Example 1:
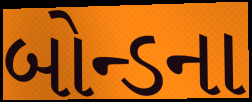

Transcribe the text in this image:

બોન્ડના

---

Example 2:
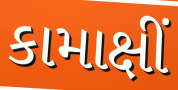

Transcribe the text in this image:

કામાક્ષીં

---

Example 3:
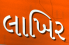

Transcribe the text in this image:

લાખિર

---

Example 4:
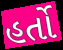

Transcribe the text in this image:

હર્તો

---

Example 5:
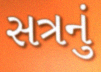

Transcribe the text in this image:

સત્રનું